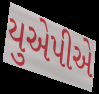
યુએપીએ